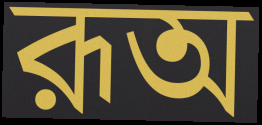
রূঅ